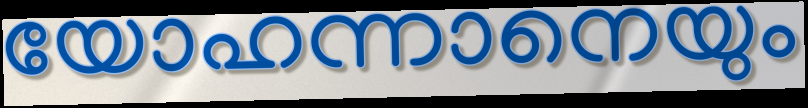
യോഹന്നാനെയും